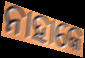
ନାହାକେ